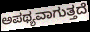
ಅಪಥ್ಯವಾಗುತ್ತದೆ